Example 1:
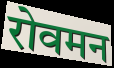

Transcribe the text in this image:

रोवमन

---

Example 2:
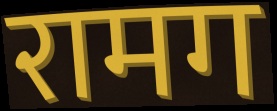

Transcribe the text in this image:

रामग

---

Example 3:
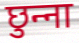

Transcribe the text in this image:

छुन्ना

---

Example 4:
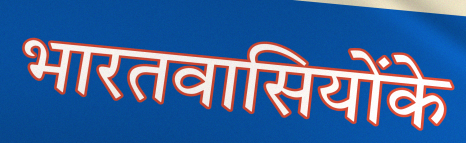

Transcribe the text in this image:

भारतवासियोंके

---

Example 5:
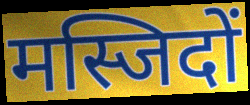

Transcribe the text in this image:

मस्जिदों